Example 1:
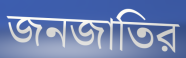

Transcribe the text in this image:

জনজাতির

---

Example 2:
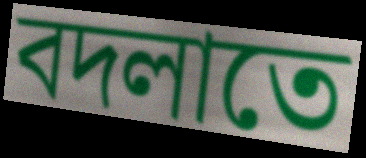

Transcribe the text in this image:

বদলাতে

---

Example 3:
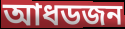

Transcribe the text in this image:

আধডজন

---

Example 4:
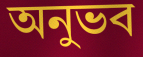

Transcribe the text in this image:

অনুভব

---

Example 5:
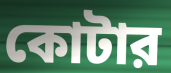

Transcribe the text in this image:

কোটার